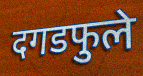
दगडफुले